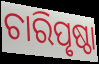
ଚାରିପୃଷ୍ଠା